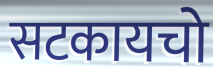
सटकायचो